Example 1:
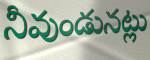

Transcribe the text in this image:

నీవుండునట్లు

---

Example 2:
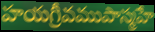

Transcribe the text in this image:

హయగ్రీవముపాస్మహే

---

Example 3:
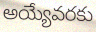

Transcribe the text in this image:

అయ్యేవరకు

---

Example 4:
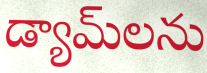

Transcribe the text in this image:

డ్యామ్‌లను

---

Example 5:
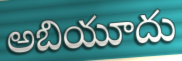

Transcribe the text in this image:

అబియూదు